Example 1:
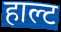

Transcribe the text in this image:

हाल्ट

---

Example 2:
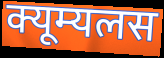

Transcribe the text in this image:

क्यूम्यलस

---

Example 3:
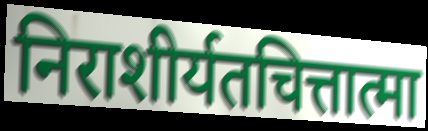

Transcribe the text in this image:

निराशीर्यतचित्तात्मा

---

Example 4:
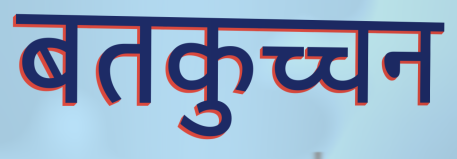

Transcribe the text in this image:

बतकुच्चन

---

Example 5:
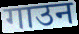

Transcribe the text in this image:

गाउन